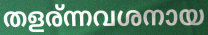
തളര്ന്നവശനായ